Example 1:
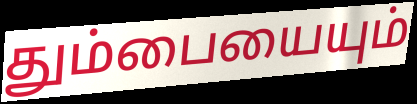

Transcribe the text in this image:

தும்பையையும்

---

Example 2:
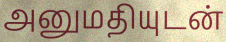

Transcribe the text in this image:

அனுமதியுடன்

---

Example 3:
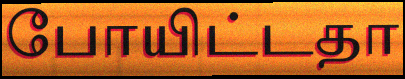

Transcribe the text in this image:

போயிட்டதா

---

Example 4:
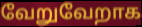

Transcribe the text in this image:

வேறுவேறாக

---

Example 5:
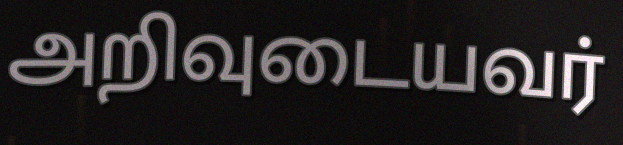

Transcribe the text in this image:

அறிவுடையவர்